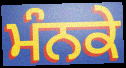
ਮੰਨਕੇ